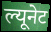
ल्यूनेट